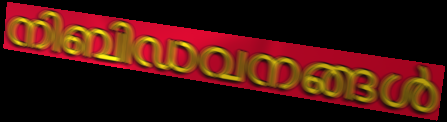
നിബിഡവനങ്ങൾ